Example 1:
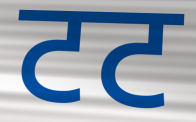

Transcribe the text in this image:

टट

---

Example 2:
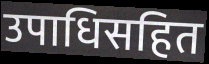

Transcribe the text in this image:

उपाधिसहित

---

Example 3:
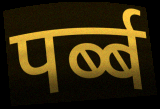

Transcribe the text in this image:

पर्ब्ब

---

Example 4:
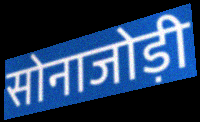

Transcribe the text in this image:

सोनाजोड़ी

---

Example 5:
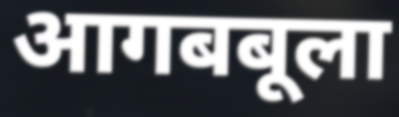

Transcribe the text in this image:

आगबबूला